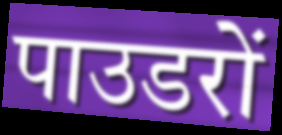
पाउडरों